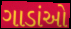
ગાડાંઓ